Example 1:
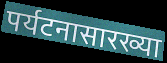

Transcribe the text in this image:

पर्यटनासारख्या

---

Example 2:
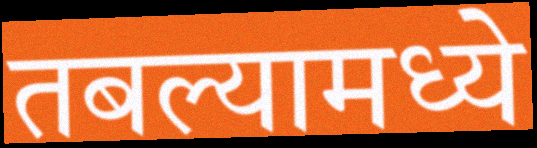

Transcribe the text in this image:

तबल्यामध्ये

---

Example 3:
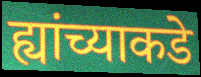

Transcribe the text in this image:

ह्यांच्याकडे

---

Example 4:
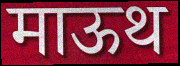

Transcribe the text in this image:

माऊथ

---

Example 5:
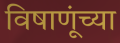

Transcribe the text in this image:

विषाणूंच्या